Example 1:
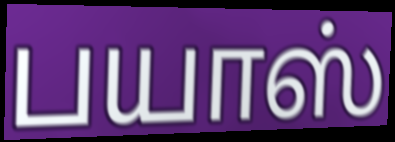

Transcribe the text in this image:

பயாஸ்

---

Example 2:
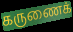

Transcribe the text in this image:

கருணைக்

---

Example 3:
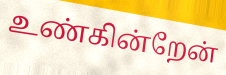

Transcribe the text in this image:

உண்கின்றேன்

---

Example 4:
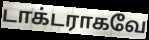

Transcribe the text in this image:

டாக்டராகவே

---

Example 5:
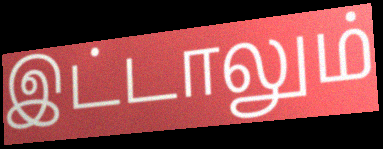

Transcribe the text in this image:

இட்டாலும்